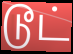
டூட்